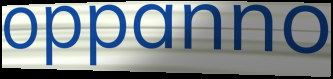
oppanno